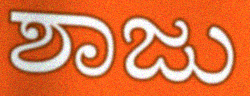
ಶಾಜು